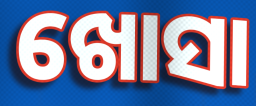
ଖୋସା